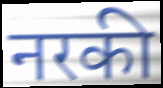
नरकी